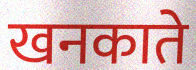
खनकाते